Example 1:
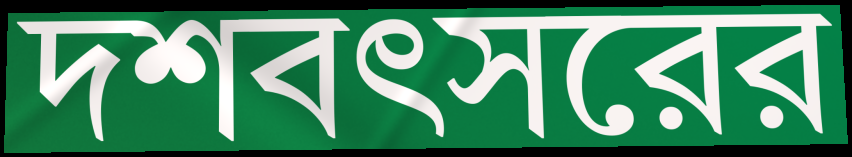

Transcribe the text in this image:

দশবৎসরের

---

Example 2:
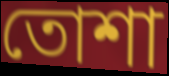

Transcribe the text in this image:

তোশা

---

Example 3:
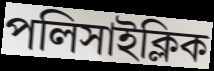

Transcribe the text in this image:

পলিসাইক্লিক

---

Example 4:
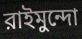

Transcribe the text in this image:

রাইমুন্দো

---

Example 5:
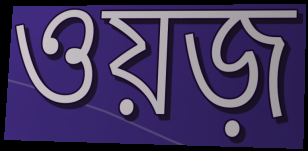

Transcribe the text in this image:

ওয়জ়